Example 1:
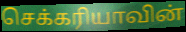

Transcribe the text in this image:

செக்கரியாவின்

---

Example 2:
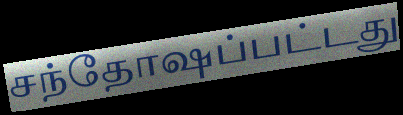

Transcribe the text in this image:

சந்தோஷப்பட்டது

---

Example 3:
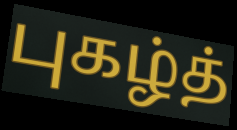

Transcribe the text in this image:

புகழ்த்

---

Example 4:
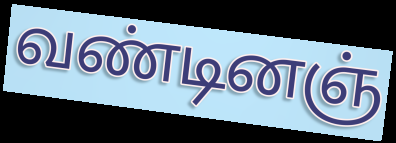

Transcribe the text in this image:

வண்டினஞ்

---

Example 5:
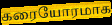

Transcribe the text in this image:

கரையோரமாக